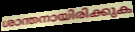
ശാന്തനായിരിക്കുക